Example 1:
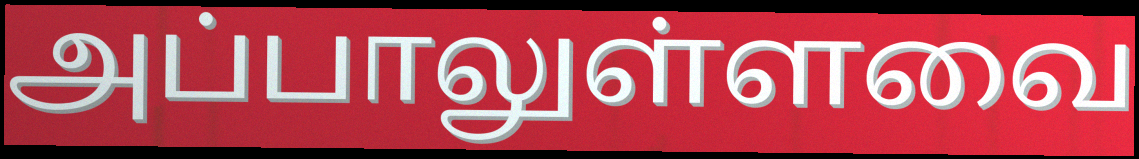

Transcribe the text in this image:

அப்பாலுள்ளவை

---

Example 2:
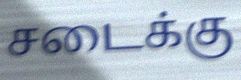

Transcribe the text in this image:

சடைக்கு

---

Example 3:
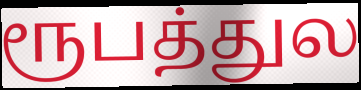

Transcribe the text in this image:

ரூபத்துல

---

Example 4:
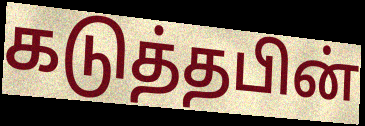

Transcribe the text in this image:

கடுத்தபின்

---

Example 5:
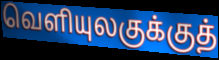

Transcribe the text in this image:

வெளியுலகுக்குத்